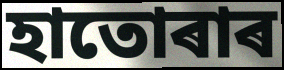
হাতোৰাৰ